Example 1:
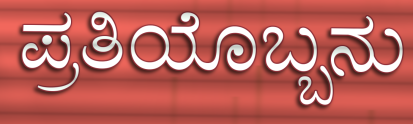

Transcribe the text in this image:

ಪ್ರತಿಯೊಬ್ಬನು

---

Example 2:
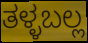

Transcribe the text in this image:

ತಳ್ಳಬಲ್ಲ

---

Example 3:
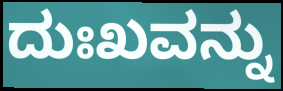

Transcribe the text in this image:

ದುಃಖವನ್ನು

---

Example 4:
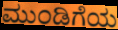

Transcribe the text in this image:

ಮುಂಡಿಗೆಯ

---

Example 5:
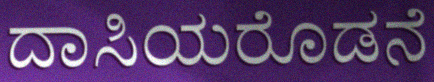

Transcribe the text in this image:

ದಾಸಿಯರೊಡನೆ